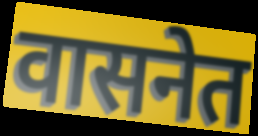
वासनेत